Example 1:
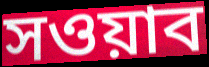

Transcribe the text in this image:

সওয়াব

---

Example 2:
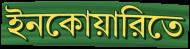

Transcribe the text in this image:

ইনকোয়ারিতে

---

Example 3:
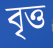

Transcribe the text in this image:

বৃত্ত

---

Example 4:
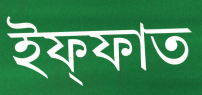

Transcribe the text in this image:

ইফ্ফাত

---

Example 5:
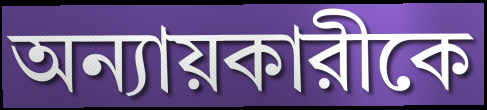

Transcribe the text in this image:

অন্যায়কারীকে